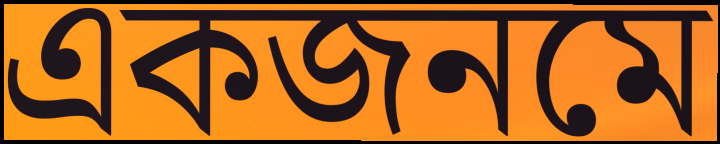
একজনমে